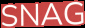
SNAG